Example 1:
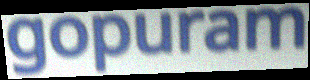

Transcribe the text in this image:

gopuram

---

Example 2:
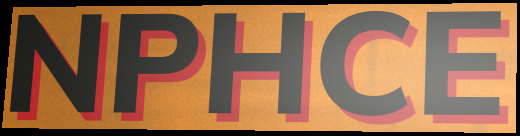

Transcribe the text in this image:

NPHCE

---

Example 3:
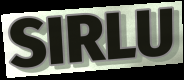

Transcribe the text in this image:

SIRLU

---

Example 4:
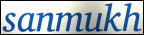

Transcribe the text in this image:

sanmukh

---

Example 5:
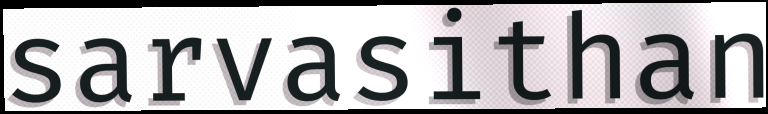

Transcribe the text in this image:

sarvasithan